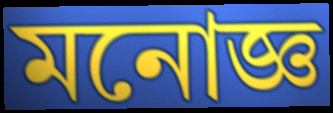
মনোজ্ঞ